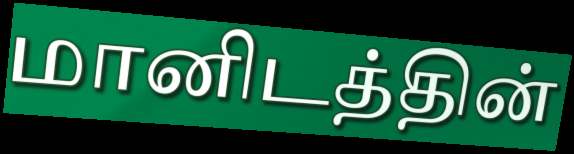
மானிடத்தின்